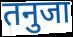
तनुजा